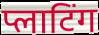
प्लाटिंग